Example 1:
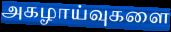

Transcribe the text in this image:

அகழாய்வுகளை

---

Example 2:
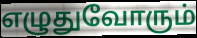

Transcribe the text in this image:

எழுதுவோரும்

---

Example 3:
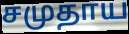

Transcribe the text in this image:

சமுதாய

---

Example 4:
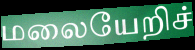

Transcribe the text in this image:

மலையேறிச்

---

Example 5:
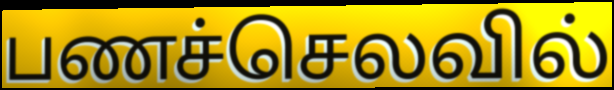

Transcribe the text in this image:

பணச்செலவில்